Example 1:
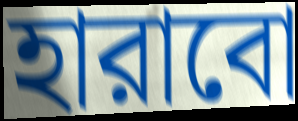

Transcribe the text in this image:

হারাবো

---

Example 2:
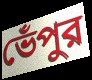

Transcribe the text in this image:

ভেঁপুর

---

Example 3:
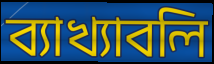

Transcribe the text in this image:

ব্যাখ্যাবলি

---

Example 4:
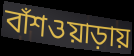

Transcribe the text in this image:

বাঁশওয়াড়ায়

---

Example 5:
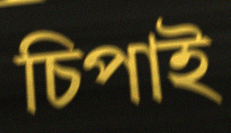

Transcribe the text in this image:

চিপাই